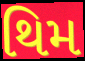
થિમ